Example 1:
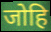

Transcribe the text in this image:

जोहि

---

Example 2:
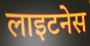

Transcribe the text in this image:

लाइटनेस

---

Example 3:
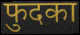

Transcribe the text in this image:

फुदका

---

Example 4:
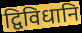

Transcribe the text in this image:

द्विविधानि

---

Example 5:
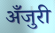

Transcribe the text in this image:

अँजुरी